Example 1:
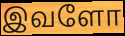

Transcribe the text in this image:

இவளோ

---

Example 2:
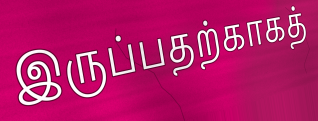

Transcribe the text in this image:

இருப்பதற்காகத்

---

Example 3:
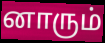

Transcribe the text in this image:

னாரும்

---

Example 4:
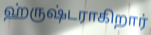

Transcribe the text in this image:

ஹ்ருஷ்டராகிறார்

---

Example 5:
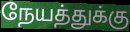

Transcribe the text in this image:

நேயத்துக்கு